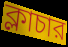
ক্লাচার